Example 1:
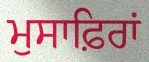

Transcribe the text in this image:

ਮੁਸਾਫ਼ਿਰਾਂ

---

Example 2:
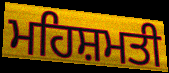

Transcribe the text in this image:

ਮਹਿਸ਼ਮਤੀ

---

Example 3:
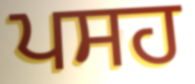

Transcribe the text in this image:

ਪਸਹ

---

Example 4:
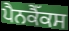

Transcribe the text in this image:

ਪੈਨਕੈੱਕਸ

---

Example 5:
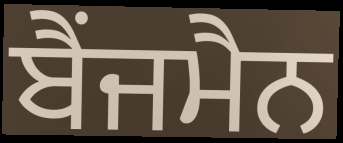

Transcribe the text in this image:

ਬੈਂਜਮੈਨ